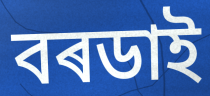
বৰডাই